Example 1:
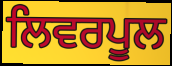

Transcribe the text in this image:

ਲਿਵਰਪੂਲ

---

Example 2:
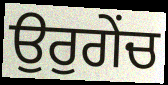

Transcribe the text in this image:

ਉਰੁਗੇਂਚ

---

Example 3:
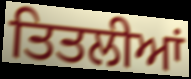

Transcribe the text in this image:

ਤਿਤਲੀਆਂ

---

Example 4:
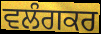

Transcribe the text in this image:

ਵਲੰਗਕਰ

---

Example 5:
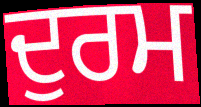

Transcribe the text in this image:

ਦੁਰਮ